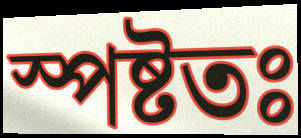
স্পষ্টতঃ